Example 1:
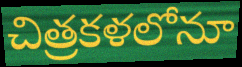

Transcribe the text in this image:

చిత్రకళలోనూ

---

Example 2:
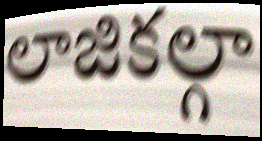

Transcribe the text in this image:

లాజికల్గా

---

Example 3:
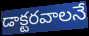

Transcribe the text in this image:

డాక్టరవాలనే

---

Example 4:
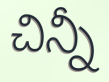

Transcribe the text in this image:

చిన్నీ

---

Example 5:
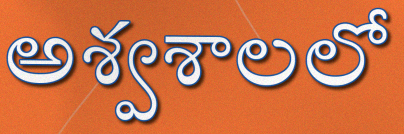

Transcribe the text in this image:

అశ్వశాలలో